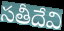
సతీదేవి